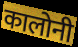
कालोनी